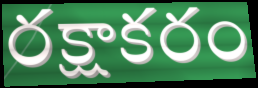
రక్షాకరం